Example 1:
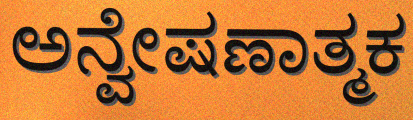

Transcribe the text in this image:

ಅನ್ವೇಷಣಾತ್ಮಕ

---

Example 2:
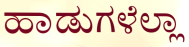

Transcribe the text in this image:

ಹಾಡುಗಳೆಲ್ಲಾ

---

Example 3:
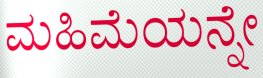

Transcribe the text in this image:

ಮಹಿಮೆಯನ್ನೇ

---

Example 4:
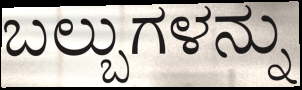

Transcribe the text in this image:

ಬಲ್ಬುಗಳನ್ನು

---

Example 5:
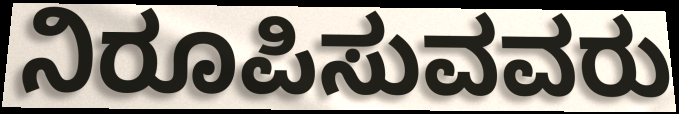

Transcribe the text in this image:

ನಿರೂಪಿಸುವವರು